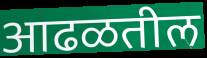
आढळतील